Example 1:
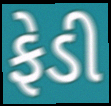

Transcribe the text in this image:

ફેડી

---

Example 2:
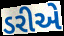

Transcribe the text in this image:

ડરીએ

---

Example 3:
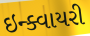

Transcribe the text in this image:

ઇન્ક્વાયરી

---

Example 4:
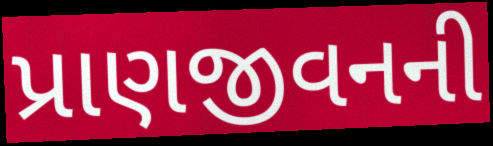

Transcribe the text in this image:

પ્રાણજીવનની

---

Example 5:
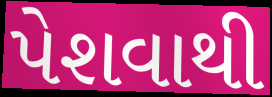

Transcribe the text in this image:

પેશવાથી